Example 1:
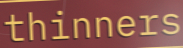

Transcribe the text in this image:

thinners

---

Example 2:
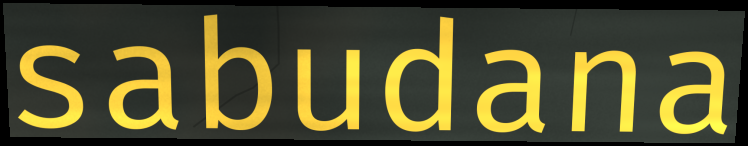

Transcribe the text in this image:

sabudana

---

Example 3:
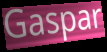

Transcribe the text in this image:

Gaspar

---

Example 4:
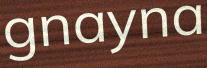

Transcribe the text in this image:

gnayna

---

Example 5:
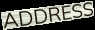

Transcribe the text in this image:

ADDRESS